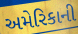
અમેરિકાની